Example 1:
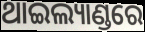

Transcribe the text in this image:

ଥାଇଲ୍ୟାଣ୍ଡରେ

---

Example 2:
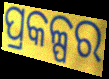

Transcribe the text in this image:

ପ୍ରକଳ୍ପର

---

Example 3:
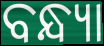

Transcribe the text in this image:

ବନ୍ଧ୍ଯା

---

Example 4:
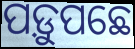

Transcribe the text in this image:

ପଡ଼ୁପଛେ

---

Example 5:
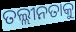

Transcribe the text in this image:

ତଲ୍ଲୀନତାକୁ